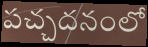
పచ్చదనంలో